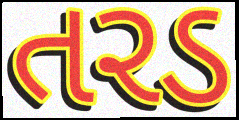
તરડ